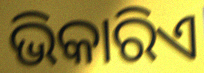
ଭିକାରିଏ